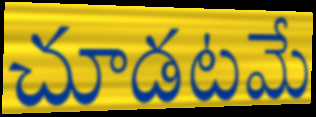
చూడటమే